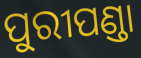
ପୁରୀପଣ୍ଡା